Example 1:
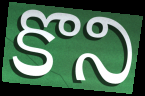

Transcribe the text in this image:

కొని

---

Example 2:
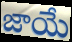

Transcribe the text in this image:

జాయే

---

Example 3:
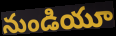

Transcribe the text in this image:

నుండియూ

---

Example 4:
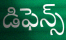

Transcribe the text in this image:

డిఫెన్స్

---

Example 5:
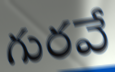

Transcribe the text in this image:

గురవే